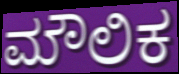
ಮೌಲಿಕ